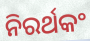
ନିରର୍ଥକଂ